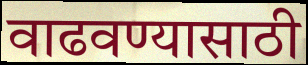
वाढवण्यासाठी